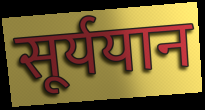
सूर्ययान